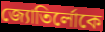
জ্যোতির্লোকে